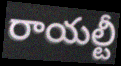
రాయల్టీ